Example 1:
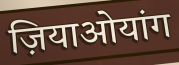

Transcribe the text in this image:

ज़ियाओयांग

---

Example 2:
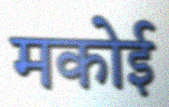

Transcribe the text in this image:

मकोई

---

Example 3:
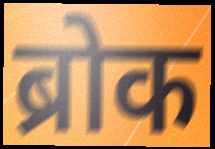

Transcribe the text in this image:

ब्रोक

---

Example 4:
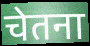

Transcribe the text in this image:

चेतना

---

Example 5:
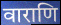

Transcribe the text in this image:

वाराणि